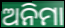
ଅନିମା